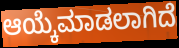
ಆಯ್ಕೆಮಾಡಲಾಗಿದೆ